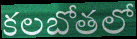
కలబోతలో